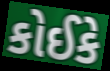
કોઈકે